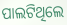
ପାଲଟିଥିଲେ